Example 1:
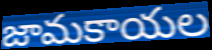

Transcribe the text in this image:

జామకాయల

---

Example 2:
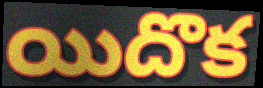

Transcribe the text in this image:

యిదొక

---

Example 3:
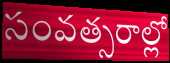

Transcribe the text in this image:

సంవత్సరాల్లో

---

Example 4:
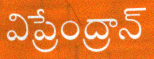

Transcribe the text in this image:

విప్రేంద్రాన్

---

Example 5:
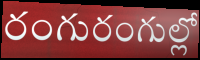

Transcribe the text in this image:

రంగురంగుల్లో